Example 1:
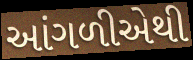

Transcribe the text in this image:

આંગળીએથી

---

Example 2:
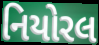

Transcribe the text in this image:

નિયોરલ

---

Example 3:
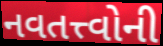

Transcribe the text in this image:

નવતત્ત્વોની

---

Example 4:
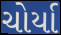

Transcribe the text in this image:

ચોર્યા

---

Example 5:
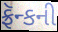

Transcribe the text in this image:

ફ્રૅન્કની